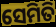
ସେମିତି